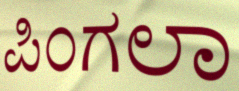
ಪಿಂಗಲಾ